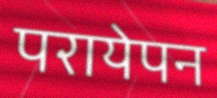
परायेपन